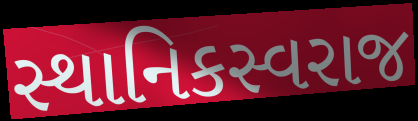
સ્થાનિકસ્વરાજ